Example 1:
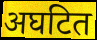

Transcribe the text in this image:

अघटित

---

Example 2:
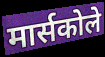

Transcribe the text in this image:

मार्सकोले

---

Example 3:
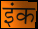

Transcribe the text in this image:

इंक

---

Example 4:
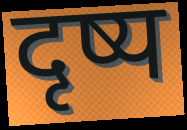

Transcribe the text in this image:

दृष्य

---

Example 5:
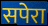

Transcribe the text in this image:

सपेरा